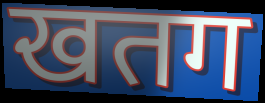
खतग